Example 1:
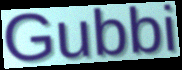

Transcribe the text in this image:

Gubbi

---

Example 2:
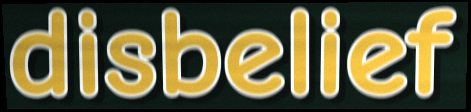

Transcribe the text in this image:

disbelief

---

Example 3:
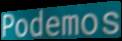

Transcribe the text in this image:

Podemos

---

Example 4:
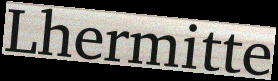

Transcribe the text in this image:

Lhermitte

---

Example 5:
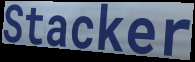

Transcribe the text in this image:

Stacker